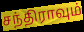
சந்திராவும்